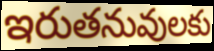
ఇరుతనువులకు